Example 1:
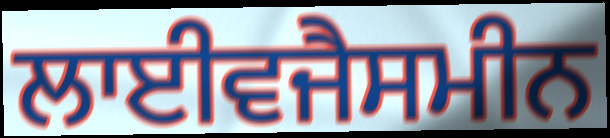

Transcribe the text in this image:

ਲਾਈਵਜੈਸਮੀਨ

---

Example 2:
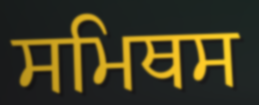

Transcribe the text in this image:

ਸਮਿਥਸ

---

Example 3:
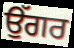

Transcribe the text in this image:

ਉੱਗਰ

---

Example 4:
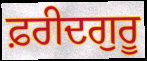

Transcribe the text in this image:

ਫ਼ਰੀਦਗੁਰੂ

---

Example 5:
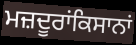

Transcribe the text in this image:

ਮਜ਼ਦੂਰਾਂਕਿਸਾਨਾਂ